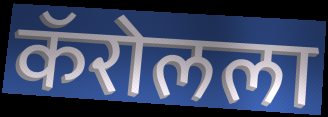
कॅरोलला